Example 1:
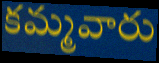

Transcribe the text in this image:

కమ్మవారు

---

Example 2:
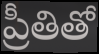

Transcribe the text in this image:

ప్రీతితో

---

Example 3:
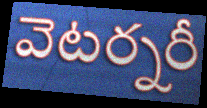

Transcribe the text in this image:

వెటర్నరీ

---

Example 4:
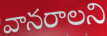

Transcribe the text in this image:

వానరాలని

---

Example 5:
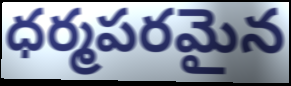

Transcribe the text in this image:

ధర్మపరమైన